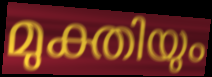
മുക്തിയും